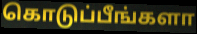
கொடுப்பீங்களா